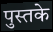
पुस्‍तके